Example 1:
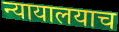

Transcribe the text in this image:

न्यायालयाच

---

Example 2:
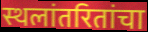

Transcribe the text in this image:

स्थलांतरितांचा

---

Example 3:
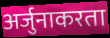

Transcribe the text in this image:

अर्जुनाकरता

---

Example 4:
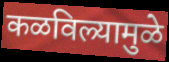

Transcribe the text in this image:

कळविल्यामुळे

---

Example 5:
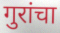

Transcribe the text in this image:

गुरांचा